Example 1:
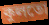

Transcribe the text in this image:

কুলতো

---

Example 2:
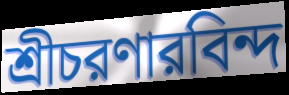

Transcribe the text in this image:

শ্রীচরণারবিন্দ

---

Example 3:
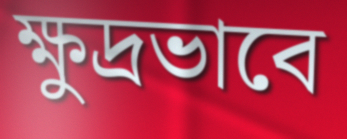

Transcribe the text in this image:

ক্ষুদ্রভাবে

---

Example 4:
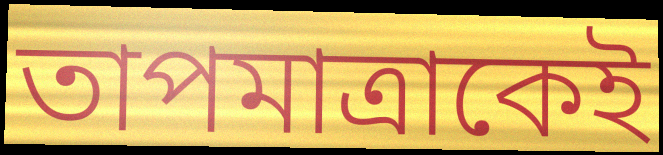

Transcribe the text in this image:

তাপমাত্রাকেই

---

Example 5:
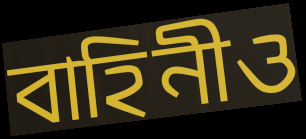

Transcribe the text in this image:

বাহিনীও